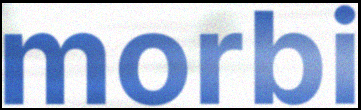
morbi